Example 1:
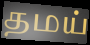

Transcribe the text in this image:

தமய்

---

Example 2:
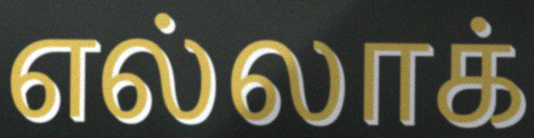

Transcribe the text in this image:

எல்லாக்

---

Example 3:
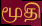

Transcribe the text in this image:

மூதி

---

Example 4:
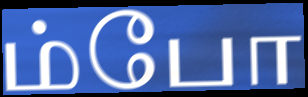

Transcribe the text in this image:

ம்போ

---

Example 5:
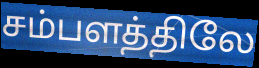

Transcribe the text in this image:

சம்பளத்திலே